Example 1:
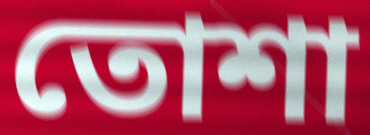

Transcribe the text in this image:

তোশা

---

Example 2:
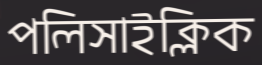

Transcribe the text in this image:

পলিসাইক্লিক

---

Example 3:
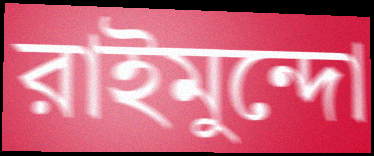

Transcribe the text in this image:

রাইমুন্দো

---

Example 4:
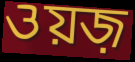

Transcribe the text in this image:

ওয়জ়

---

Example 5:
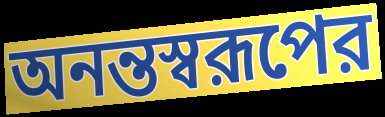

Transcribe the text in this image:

অনন্তস্বরূপের